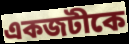
একজটীকে